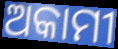
ଅକାମୀ